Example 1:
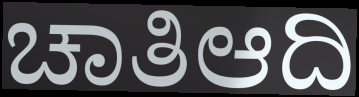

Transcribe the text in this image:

ಚಾತಿಆದಿ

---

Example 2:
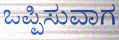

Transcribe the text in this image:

ಒಪ್ಪಿಸುವಾಗ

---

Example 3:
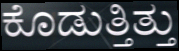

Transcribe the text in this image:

ಕೊಡುತ್ತಿತ್ತು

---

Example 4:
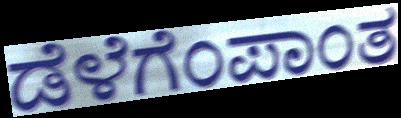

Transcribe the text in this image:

ಡೆಳೆಗೆಂಪಾಂತ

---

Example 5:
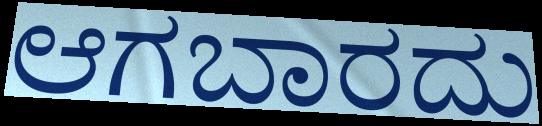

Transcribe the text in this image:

ಆಗಬಾರದು